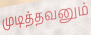
முடித்தவனும்